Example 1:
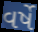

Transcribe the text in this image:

વર્ષે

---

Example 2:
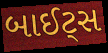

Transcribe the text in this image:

બાઈટ્સ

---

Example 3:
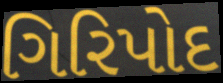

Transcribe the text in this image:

ગિરિપોદ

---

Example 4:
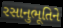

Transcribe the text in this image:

રસાનુભૂતિને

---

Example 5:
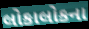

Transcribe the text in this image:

લોકાલોકના